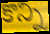
కొన్ని